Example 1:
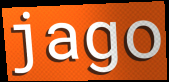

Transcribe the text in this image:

jago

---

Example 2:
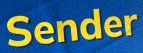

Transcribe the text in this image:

Sender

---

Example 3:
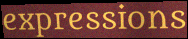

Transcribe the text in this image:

expressions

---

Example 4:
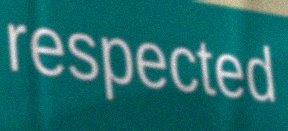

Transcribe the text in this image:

respected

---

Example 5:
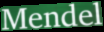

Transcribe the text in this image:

Mendel